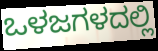
ಒಳಜಗಳದಲ್ಲಿ